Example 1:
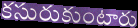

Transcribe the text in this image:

కసురుకుంటారు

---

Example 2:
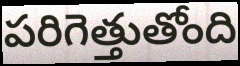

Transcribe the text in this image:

పరిగెత్తుతోంది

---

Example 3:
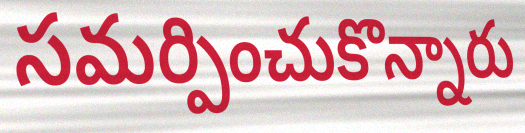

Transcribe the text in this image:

సమర్పించుకొన్నారు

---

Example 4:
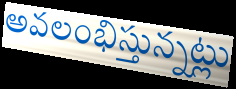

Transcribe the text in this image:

అవలంభిస్తున్నట్లు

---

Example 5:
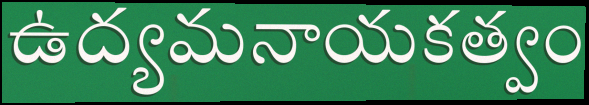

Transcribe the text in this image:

ఉద్యమనాయకత్వం